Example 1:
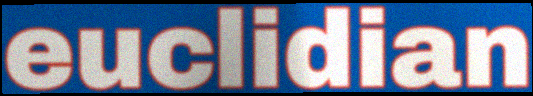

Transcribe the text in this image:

euclidian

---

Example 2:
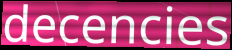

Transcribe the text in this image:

decencies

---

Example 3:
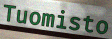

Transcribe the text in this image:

Tuomisto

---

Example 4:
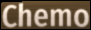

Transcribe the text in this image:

Chemo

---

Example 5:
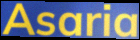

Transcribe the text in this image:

Asaria